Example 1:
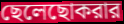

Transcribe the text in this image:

ছেলেছোকরার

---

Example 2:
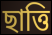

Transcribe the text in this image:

ছাত্তি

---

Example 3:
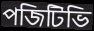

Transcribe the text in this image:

পজিটিভি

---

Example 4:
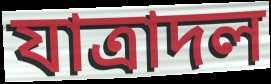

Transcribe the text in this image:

যাত্রাদল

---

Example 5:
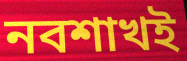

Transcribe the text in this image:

নবশাখই